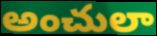
అంచులా